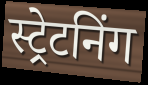
स्ट्रेटनिंग